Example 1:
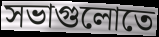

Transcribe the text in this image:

সভাগুলোতে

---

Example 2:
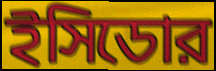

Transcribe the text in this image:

ইসিডোর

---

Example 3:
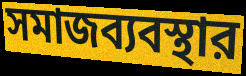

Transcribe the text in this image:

সমাজব্যবস্থার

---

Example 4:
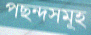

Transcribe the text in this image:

পছন্দসমূহ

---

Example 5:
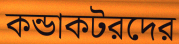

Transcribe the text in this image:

কন্ডাকটরদের